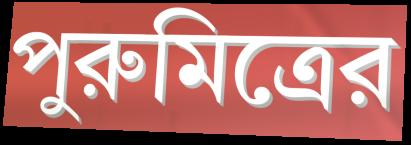
পুরুমিত্রের